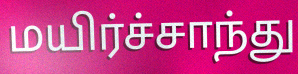
மயிர்ச்சாந்து